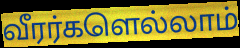
வீரர்களெல்லாம்